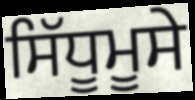
ਸਿੱਧੂਮੂਸੇ